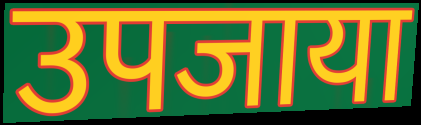
उपजाया